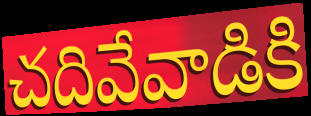
చదివేవాడికి